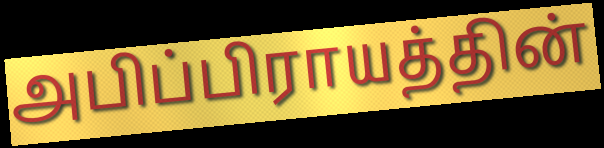
அபிப்பிராயத்தின்